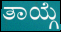
ತಾಯ್ಗೆ